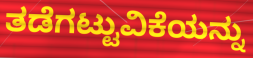
ತಡೆಗಟ್ಟುವಿಕೆಯನ್ನು